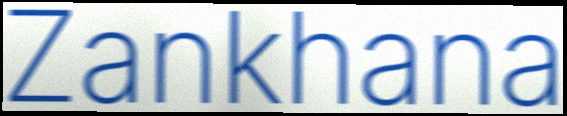
Zankhana